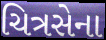
ચિત્રસેના